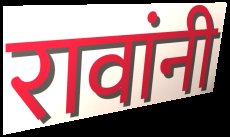
रावांनी